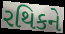
રથિકને